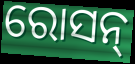
ରୋସନ୍